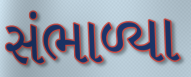
સંભાળ્યા